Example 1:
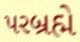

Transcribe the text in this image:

પરબ્રહ્મે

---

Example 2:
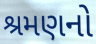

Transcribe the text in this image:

શ્રમણનો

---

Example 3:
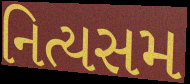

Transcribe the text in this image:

નિત્યસમ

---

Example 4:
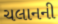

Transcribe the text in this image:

ચલાનની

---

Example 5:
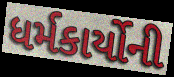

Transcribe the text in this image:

ધર્મકાર્યોની